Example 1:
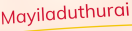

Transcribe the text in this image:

Mayiladuthurai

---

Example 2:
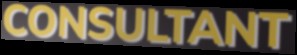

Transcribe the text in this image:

CONSULTANT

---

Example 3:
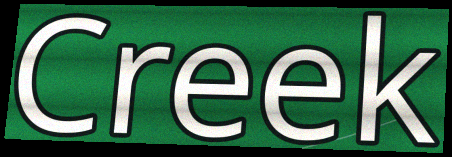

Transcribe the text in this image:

Creek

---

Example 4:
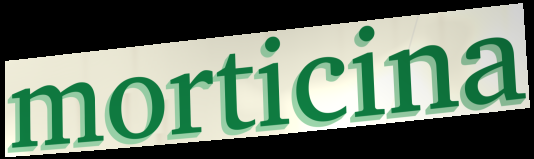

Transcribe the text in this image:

morticina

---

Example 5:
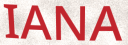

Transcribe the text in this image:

IANA